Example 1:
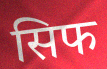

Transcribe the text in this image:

सिफ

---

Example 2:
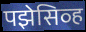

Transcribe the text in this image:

पझेसिव्ह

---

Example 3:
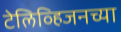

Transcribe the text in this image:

टेलिव्हिजनच्या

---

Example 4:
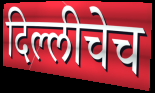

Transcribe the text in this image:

दिल्लीचेच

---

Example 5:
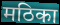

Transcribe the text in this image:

मठिका